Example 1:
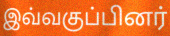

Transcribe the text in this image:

இவ்வகுப்பினர்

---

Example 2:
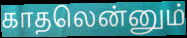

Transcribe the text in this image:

காதலென்னும்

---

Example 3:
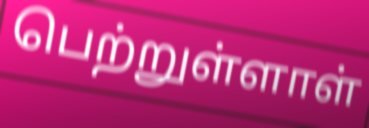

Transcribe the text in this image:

பெற்றுள்ளாள்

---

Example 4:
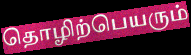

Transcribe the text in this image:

தொழிற்பெயரும்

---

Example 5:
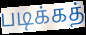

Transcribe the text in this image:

படிக்கத்